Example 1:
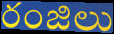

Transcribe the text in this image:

రంజిలు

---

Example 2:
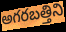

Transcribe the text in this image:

అగరబత్తిని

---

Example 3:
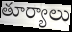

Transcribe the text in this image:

తూర్యాలు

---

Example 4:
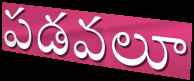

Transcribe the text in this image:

పడవలూ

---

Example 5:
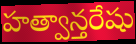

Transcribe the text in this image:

హత్వాన్తరేషు